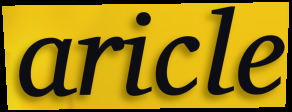
aricle